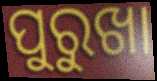
ପୁରୁଖା